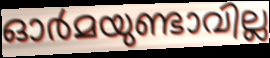
ഓർമയുണ്ടാവില്ല